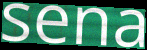
sena